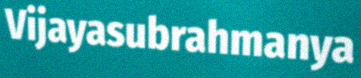
Vijayasubrahmanya